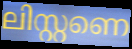
ലിസ്റ്റണെ